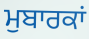
ਮੁਬਾਰਕਾਂ